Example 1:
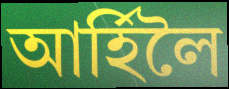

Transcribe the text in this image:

আৰ্হিলৈ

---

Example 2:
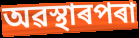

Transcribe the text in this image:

অৱস্থাৰপৰা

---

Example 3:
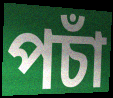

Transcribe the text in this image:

পচাঁ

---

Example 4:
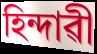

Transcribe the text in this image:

হিন্দাৱী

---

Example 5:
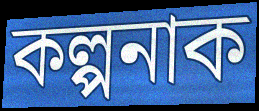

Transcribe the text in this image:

কল্পনাক